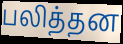
பலித்தன